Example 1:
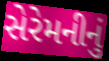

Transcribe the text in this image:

સેરેમનીનું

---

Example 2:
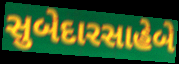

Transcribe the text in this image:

સુબેદારસાહેબે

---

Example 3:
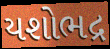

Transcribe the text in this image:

યશોભદ્ર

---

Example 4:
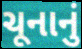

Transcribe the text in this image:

ચૂનાનું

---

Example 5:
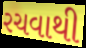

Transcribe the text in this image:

રચવાથી